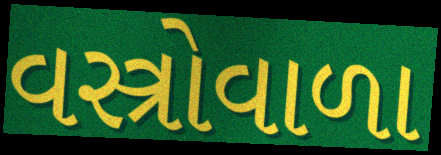
વસ્ત્રોવાળા